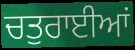
ਚਤੁਰਾਈਆਂ